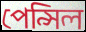
পেন্সিল